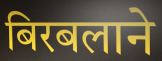
बिरबलाने